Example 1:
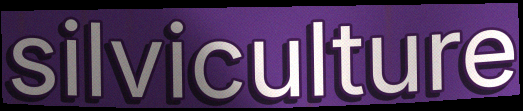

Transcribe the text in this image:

silviculture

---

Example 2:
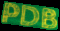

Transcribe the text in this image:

PDB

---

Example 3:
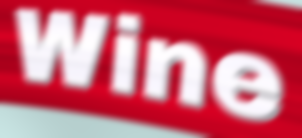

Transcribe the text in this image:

Wine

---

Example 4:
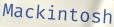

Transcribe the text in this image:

Mackintosh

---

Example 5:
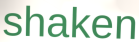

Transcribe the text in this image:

shaken